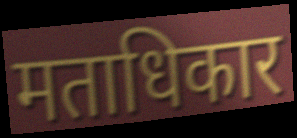
मताधिकार